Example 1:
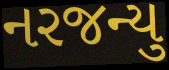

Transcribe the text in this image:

નરજન્યુ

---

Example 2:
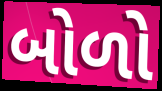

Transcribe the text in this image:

બોળો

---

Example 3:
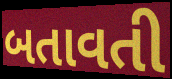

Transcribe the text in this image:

બતાવતી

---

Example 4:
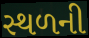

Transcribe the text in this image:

સ્થળની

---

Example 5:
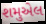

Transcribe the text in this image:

શમુએલ